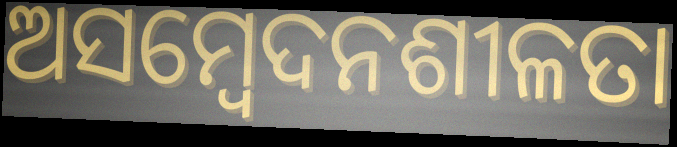
ଅସମ୍ବେଦନଶୀଳତା